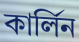
কার্লিন